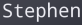
Stephen